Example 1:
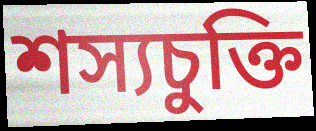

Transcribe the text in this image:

শস্যচুক্তি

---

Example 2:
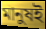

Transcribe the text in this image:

মানুষই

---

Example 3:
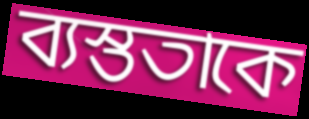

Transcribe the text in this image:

ব্যস্ততাকে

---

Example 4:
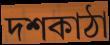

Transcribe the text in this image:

দশকাঠা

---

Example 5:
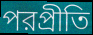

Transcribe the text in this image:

পরপ্রীতি